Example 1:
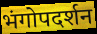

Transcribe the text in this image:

भंगोपदर्शन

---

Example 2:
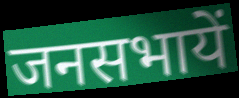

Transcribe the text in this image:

जनसभायें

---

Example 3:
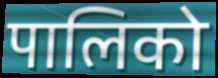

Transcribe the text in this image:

पालिको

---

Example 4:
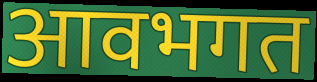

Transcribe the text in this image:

आवभगत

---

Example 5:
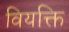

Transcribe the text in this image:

वियक्ति